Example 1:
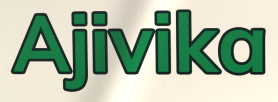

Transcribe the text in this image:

Ajivika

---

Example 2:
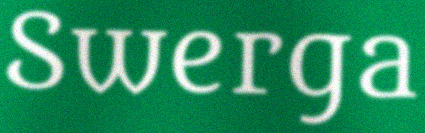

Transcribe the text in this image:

Swerga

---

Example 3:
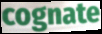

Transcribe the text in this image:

cognate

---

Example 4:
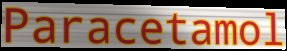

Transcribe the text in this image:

Paracetamol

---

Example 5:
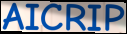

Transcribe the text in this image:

AICRIP